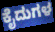
ಕೈದುಗಳ